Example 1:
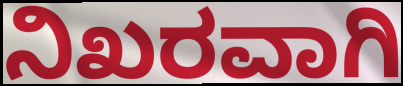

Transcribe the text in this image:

ನಿಖರವಾಗಿ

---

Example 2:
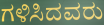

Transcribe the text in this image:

ಗಳಿಸಿದವರು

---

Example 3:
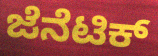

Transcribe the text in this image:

ಜೆನೆಟಿಕ್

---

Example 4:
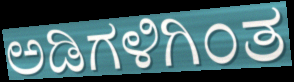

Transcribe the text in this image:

ಅಡಿಗಳಿಗಿಂತ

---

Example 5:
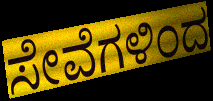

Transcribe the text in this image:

ಸೇವೆಗಳಿಂದ